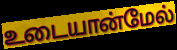
உடையான்மேல்